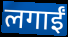
लगाईं